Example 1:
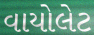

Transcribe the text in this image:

વાયોલેટ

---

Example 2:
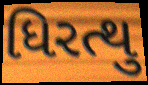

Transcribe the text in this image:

ધિરત્થુ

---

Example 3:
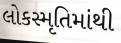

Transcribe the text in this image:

લોકસ્મૃતિમાંથી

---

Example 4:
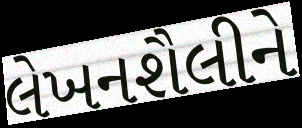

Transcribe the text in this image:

લેખનશૈલીને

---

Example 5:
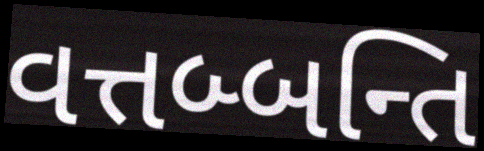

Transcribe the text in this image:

વત્તબ્બન્તિ